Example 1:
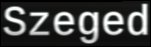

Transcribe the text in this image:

Szeged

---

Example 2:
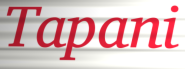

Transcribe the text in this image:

Tapani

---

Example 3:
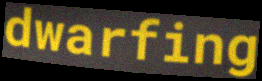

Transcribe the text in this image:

dwarfing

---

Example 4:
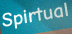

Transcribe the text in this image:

Spirtual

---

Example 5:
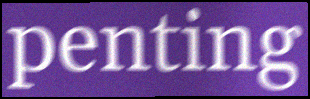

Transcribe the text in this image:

penting